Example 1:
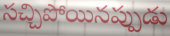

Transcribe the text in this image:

సచ్చిపోయినప్పుడు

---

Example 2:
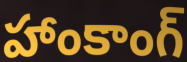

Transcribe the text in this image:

హాంకాంగ్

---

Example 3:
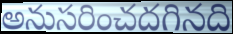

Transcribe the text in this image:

అనుసరించదగినది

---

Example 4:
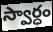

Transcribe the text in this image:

స్వార్ధం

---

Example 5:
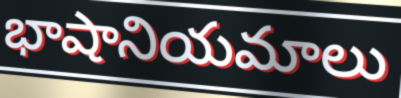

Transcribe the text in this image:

భాషానియమాలు